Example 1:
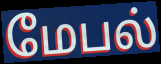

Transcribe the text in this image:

மேபல்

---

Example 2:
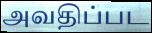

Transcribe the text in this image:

அவதிப்பட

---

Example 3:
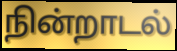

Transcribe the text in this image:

நின்றாடல்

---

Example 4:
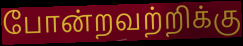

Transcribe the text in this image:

போன்றவற்றிக்கு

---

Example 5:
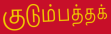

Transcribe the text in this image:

குடும்பத்தக்